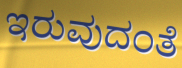
ಇರುವುದಂತೆ